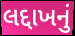
લદ્દાખનું